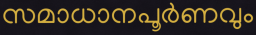
സമാധാനപൂർണവും